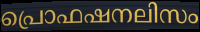
പ്രൊഫഷനലിസം